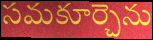
సమకూర్చెను